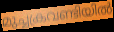
മുച്ചക്രവണ്ടിയിൽ